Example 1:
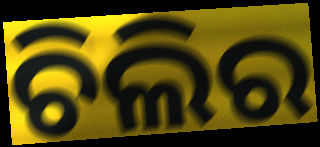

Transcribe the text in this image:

ଚିଲିର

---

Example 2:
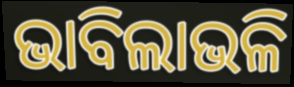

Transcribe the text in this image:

ଭାବିଲାଭଳି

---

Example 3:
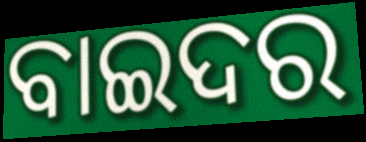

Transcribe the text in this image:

ବାଇଦର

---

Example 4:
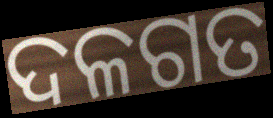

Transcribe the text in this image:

ଦଳଗତ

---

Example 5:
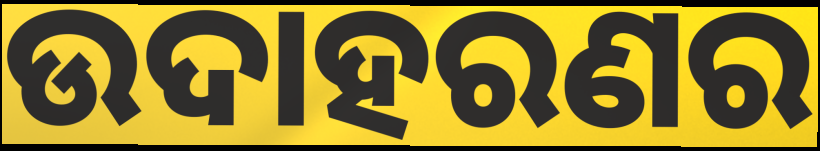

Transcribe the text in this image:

ଉଦାହରଣର